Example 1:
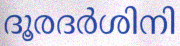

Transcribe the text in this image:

ദൂരദർശിനി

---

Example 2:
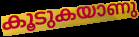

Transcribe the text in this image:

കൂടുകയാണു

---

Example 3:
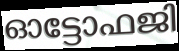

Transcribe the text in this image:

ഓട്ടോഫജി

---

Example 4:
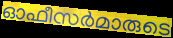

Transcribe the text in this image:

ഓഫീസർമാരുടെ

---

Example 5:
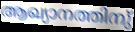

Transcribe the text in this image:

ആഖ്യാനത്തിനു്